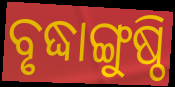
ବୃଦ୍ଧାଙ୍ଗୁଷ୍ଠି